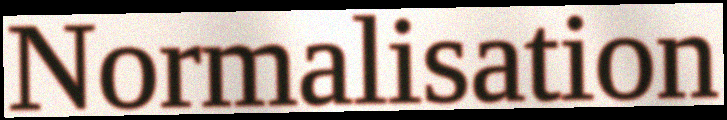
Normalisation